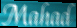
Mahad